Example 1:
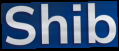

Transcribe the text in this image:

Shib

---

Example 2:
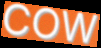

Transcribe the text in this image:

COW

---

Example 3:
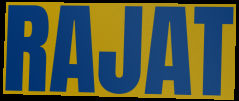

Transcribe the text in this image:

RAJAT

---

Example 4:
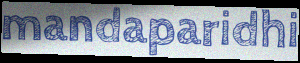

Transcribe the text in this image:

mandaparidhi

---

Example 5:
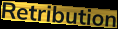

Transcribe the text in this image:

Retribution